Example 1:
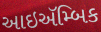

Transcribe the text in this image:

આઇઍમ્બિક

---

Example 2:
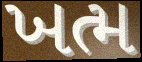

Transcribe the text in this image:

ખત્મ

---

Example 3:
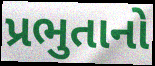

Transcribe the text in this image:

પ્રભુતાનો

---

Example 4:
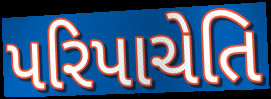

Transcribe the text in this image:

પરિપાચેતિ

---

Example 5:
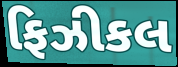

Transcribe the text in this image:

ફિઝીકલ